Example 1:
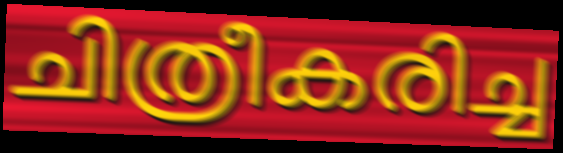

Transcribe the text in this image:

ചിത്രീകരിച്ച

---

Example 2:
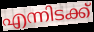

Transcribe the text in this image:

എന്നിടക്ക്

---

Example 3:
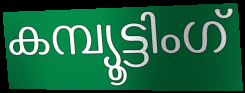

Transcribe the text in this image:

കമ്പ്യൂട്ടിംഗ്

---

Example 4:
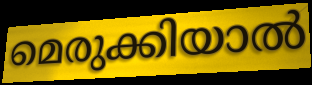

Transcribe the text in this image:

മെരുക്കിയാൽ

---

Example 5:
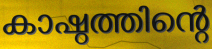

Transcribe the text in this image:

കാഷ്ഠത്തിന്റെ